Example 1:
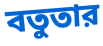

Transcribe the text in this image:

বতুতার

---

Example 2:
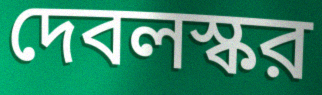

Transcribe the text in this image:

দেবলস্কর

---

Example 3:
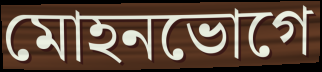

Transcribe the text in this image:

মোহনভোগে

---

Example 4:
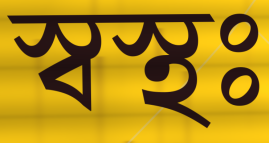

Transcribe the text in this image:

স্বস্থঃ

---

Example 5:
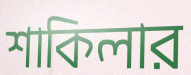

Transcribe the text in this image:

শাকিলার